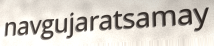
navgujaratsamay